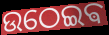
ଉଠେଇଵ